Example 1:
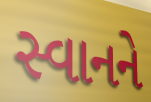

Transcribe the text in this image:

સ્વાનને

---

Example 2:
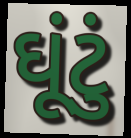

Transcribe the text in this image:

ઘૂંટું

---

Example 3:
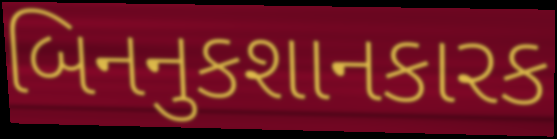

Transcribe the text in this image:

બિનનુકશાનકારક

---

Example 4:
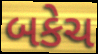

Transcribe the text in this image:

બકેચ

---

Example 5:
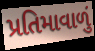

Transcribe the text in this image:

પ્રતિમાવાળું